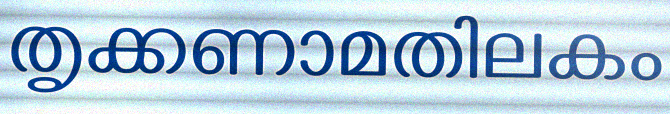
തൃക്കണാമതിലകം